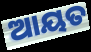
ଆୟତ